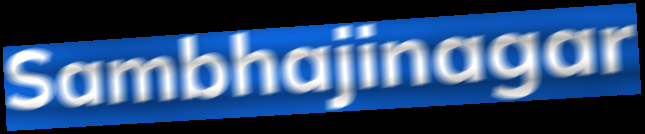
Sambhajinagar